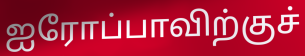
ஐரோப்பாவிற்குச்